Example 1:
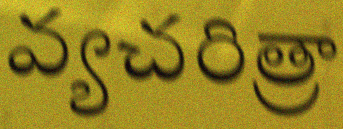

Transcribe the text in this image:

వ్యచరిత్రా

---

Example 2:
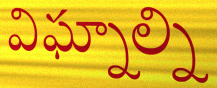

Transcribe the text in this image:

విఘ్నాల్ని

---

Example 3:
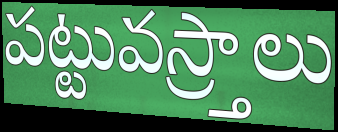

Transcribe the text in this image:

పట్టువస్ర్తాలు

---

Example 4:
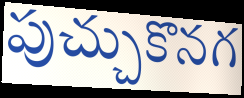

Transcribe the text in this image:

పుచ్చుకొనగ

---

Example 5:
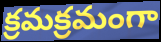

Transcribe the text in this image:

క్రమక్రమంగా